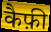
कैफ़ी